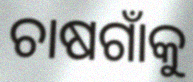
ଚାଷଗାଁକୁ